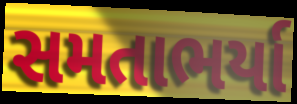
સમતાભર્યા